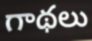
గాథలు